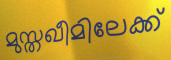
മുസ്തഖീമിലേക്ക്